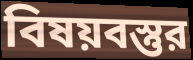
বিষয়বস্তুর